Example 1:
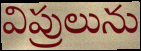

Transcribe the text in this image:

విప్రులును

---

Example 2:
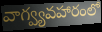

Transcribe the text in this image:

వాగ్వ్యవహారంలో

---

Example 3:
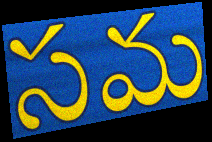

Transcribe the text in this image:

సమ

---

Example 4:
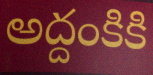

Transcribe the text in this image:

అద్దంకికి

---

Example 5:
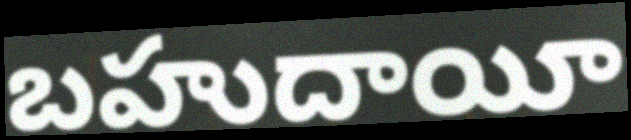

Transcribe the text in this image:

బహుదాయీ